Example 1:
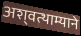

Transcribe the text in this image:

अश्वत्थाम्याने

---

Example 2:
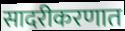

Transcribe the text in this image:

सादरीकरणात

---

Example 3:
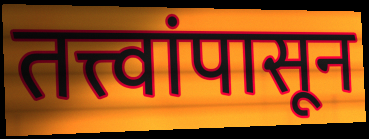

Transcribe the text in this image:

तत्त्वांपासून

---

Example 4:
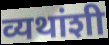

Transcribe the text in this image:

व्यथांशी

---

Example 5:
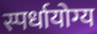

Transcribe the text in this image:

स्पर्धायोग्य